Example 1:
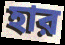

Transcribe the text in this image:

হার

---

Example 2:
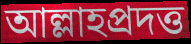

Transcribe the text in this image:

আল্লাহপ্রদত্ত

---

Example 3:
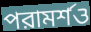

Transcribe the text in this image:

পরামর্শও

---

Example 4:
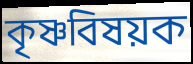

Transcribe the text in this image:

কৃষ্ণবিষয়ক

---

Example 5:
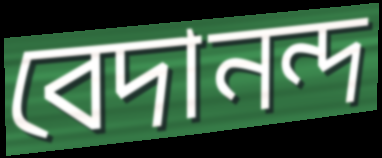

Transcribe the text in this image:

বেদানন্দ